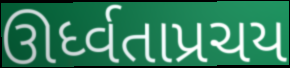
ઊર્ધ્વતાપ્રચય